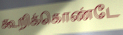
கூறிக்கொண்டே